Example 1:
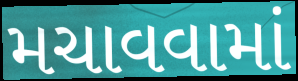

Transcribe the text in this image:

મચાવવામાં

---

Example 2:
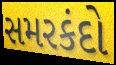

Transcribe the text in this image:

સમરકંદો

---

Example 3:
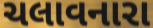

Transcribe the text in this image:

ચલાવનારા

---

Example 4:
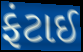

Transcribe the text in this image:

ફંટાઈ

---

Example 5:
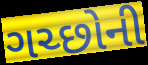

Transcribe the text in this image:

ગચ્છોની